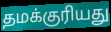
தமக்குரியது